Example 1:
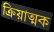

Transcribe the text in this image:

ক্ৰিয়াত্মক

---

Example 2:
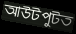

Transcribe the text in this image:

আউটপুটত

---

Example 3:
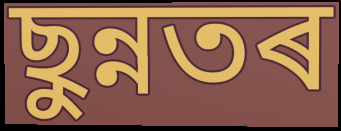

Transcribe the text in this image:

ছুন্নতৰ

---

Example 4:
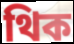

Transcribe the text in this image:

থিক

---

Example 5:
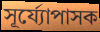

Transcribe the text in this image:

সূৰ্য্যোপাসক